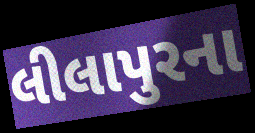
લીલાપુરના